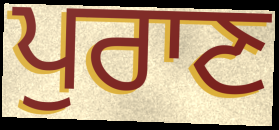
ਪੁਰਾਣ